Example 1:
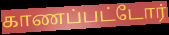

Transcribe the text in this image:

காணப்பட்டோர்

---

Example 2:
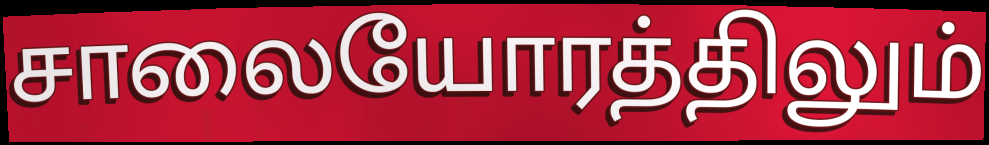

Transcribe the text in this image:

சாலையோரத்திலும்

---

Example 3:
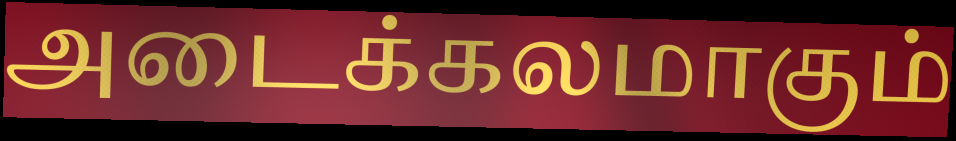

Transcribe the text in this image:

அடைக்கலமாகும்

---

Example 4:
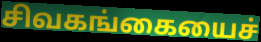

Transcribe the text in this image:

சிவகங்கையைச்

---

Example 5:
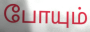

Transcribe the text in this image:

போயும்